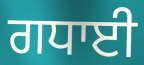
ਗਧਾਈ